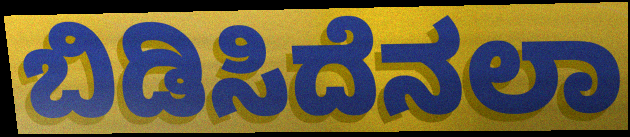
ಬಿಡಿಸಿದೆನಲಾ